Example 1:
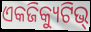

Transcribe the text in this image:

ଏକଜିକ୍ୟୁଟିଭ୍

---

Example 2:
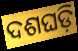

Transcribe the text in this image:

ଦଶଘଡ଼ି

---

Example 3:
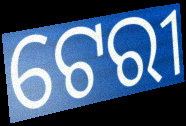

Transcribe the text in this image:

ଟେରୀ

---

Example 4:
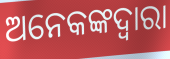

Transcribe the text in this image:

ଅନେକଙ୍କଦ୍ୱାରା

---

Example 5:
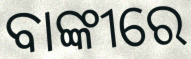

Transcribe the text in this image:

ବାଙ୍କୀରେ